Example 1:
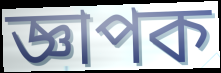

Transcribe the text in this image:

জ্ঞাপক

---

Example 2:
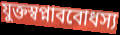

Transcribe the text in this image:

যুক্তস্বপ্নাববোধস্য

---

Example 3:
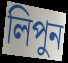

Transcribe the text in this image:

লিপুন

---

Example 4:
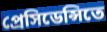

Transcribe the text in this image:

প্রেসিডেন্সিতে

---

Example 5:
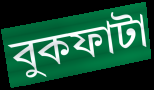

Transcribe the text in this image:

বুকফাটা